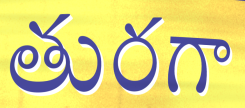
తురగా